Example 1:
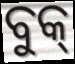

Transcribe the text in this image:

ବୁକ୍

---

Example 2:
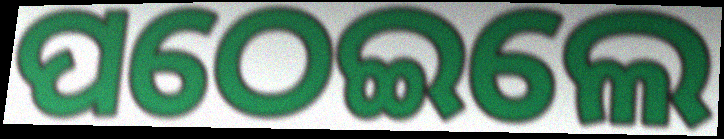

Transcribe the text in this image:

ପଠେଇଲେ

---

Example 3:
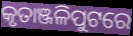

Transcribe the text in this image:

କୃତାଞ୍ଜଳିପୁଟରେ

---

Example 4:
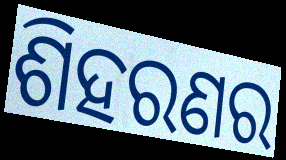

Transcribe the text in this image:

ଶିହରଣର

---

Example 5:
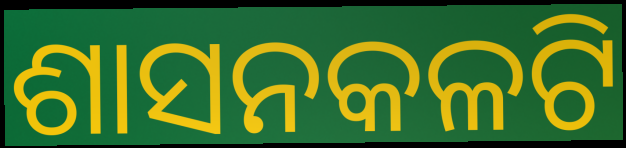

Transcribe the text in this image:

ଶାସନକଳଟି